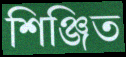
শিঞ্জিত